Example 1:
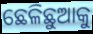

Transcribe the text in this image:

ଛେଳିଛୁଆକୁ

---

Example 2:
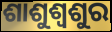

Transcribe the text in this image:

ଶାଶୁଶ୍ୱଶୁର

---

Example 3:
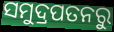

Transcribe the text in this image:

ସମୁଦ୍ରପତନରୁ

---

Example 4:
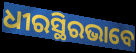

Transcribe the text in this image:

ଧୀରସ୍ଥିରଭାବେ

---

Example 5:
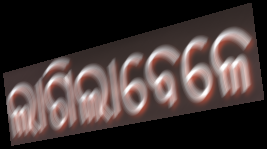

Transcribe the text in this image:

ଲାଗିଲାବେଳେ